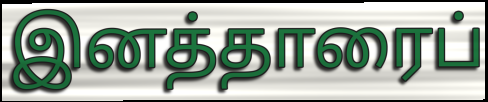
இனத்தாரைப்